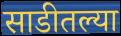
साडीतल्या